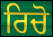
ਰਿਚੋ